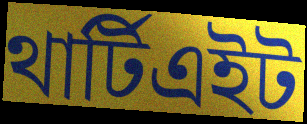
থার্টিএইট